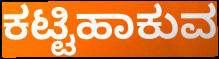
ಕಟ್ಟಿಹಾಕುವ